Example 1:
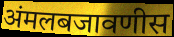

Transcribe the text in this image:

अंमलबजावणीस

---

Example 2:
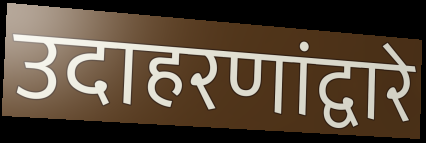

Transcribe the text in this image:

उदाहरणांद्वारे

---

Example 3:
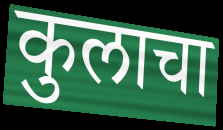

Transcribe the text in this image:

कुलाचा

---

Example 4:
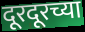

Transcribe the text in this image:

दूरदूरच्या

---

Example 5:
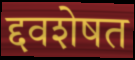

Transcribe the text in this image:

द्दवशेषत